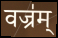
वज्र॑म्